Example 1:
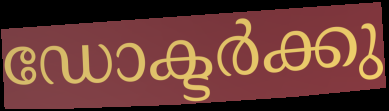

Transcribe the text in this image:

ഡോക്ടർക്കു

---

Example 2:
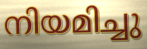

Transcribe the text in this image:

നിയമിച്ചു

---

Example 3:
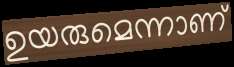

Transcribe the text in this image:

ഉയരുമെന്നാണ്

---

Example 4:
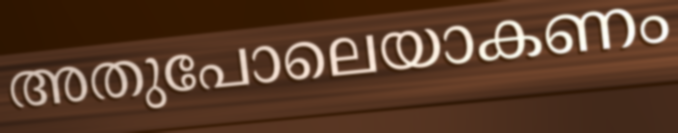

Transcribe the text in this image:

അതുപോലെയാകണം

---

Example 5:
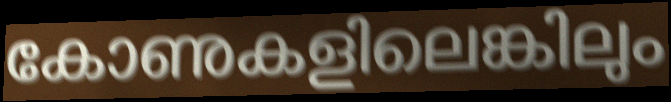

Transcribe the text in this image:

കോണുകളിലെങ്കിലും